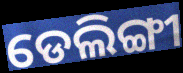
ଡେଲିଙ୍ଗୀ